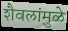
शैवलांमुळे